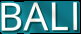
BALI